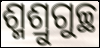
ଶ୍ମଶ୍ରୁଗୁଚ୍ଛ